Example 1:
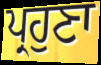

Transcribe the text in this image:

ਪ੍ਰਹੁਣਾ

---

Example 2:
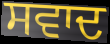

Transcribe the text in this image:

ਸਵਾਦ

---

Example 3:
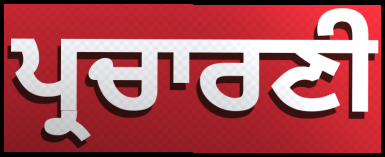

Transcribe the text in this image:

ਪ੍ਰਚਾਰਣੀ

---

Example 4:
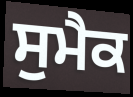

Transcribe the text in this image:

ਸੁਮੈਕ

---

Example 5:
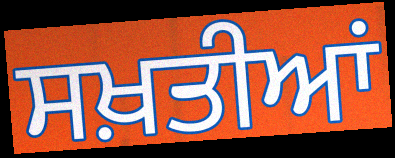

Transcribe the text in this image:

ਸਖ਼ਤੀਆਂ